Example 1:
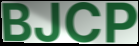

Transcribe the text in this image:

BJCP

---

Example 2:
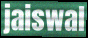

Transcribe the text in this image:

jaiswal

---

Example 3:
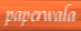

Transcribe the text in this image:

paperwala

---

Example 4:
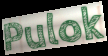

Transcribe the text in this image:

Pulok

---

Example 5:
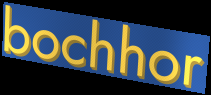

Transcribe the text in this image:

bochhor